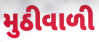
મુઠીવાળી